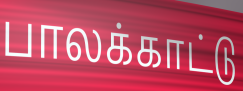
பாலக்காட்டு